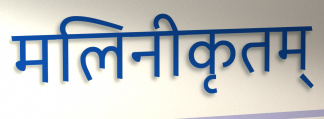
मलिनीकृतम्